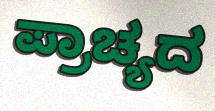
ಪ್ರಾಚ್ಯದ